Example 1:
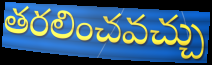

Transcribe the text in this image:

తరలించవచ్చు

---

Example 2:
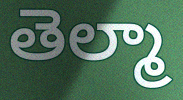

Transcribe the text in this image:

తెల్మా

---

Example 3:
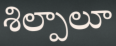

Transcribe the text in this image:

శిల్పాలూ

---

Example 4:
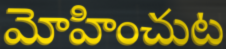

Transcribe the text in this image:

మోహించుట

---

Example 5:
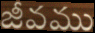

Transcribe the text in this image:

జీవము